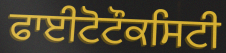
ਫਾਈਟੋਟੌਕਸਿਟੀ